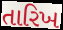
તારિખ